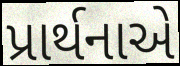
પ્રાર્થનાએ